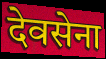
देवसेना